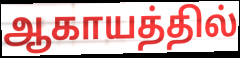
ஆகாயத்தில்